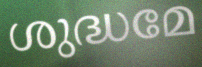
ശുദ്ധമേ